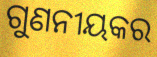
ଗୁଣନୀୟକର